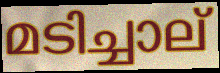
മടിച്ചാല്